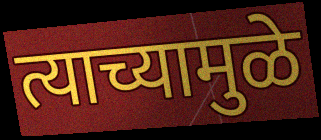
त्याच्यामुळे